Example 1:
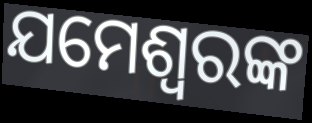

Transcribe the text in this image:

ଯମେଶ୍ୱରଙ୍କ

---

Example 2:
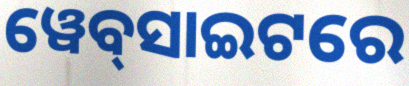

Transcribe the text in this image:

ୱେବ୍‍ସାଇଟରେ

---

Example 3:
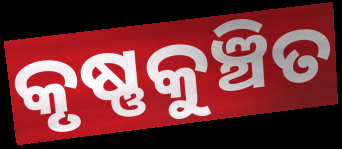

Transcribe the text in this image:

କୃଷ୍ଣକୁଞ୍ଚିତ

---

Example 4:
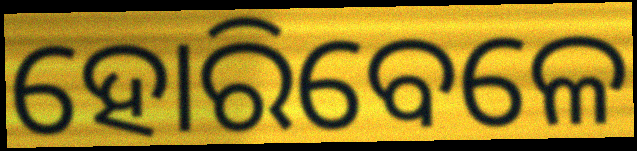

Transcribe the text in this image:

ହୋରିବେଳେ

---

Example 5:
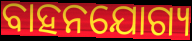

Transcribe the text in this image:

ବାହନଯୋଗ୍ୟ